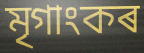
মৃগাংকৰ